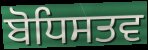
ਬੋਧਿਸਤਵ